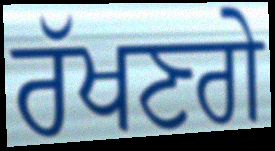
ਰੱਖਣਗੇ